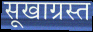
सूखाग्रस्त